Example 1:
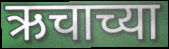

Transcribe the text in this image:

ऋचाच्या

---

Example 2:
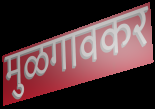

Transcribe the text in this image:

मुळगावकर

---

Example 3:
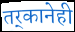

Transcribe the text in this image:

तर्कानेही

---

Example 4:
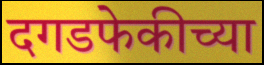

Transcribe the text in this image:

दगडफेकीच्या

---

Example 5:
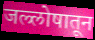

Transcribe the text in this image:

जल्लोषातून